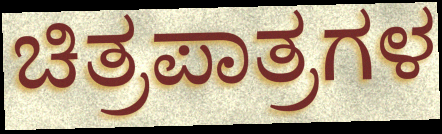
ಚಿತ್ರಪಾತ್ರಗಳ